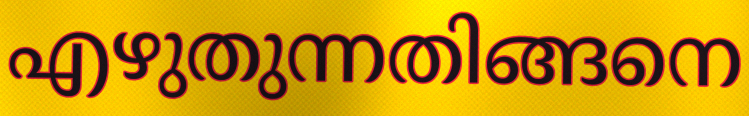
എഴുതുന്നതിങ്ങനെ